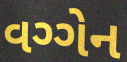
વગ્ગેન